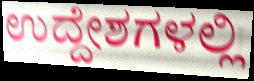
ಉದ್ದೇಶಗಳಲ್ಲಿ